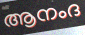
ആനംദ